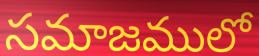
సమాజములో